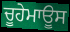
ਚੂਹੇਮਾਊਸ